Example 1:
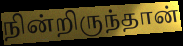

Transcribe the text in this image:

நின்றிருந்தான்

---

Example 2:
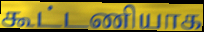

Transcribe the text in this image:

கூட்டணியாக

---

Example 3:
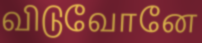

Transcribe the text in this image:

விடுவோனே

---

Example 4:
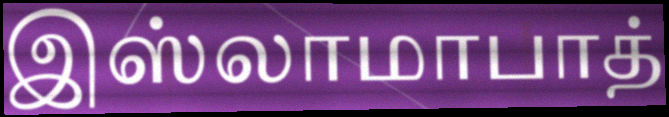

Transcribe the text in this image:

இஸ்லாமாபாத்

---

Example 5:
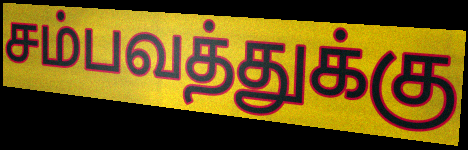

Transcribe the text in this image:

சம்பவத்துக்கு